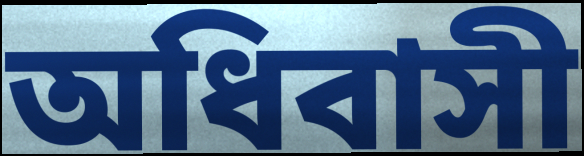
অধিবাসী